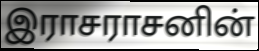
இராசராசனின்